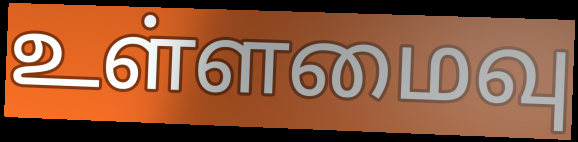
உள்ளமைவு